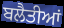
ਬਲੈਤੀਆਂ